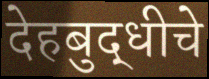
देहबुद्धीचे